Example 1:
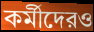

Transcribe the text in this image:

কর্মীদেরও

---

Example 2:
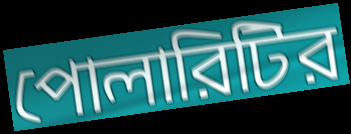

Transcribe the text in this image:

পোলারিটির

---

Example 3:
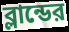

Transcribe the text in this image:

ব্লান্ডের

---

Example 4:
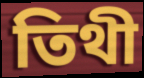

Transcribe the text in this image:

তিথী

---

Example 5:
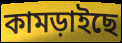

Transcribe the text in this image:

কামড়াইছে